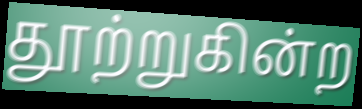
தூற்றுகின்ற